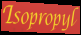
Isopropyl